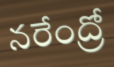
నరేంద్రో